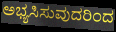
ಅಭ್ಯಸಿಸುವುದರಿಂದ